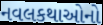
નવલકથાઓનો